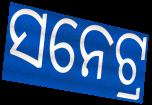
ସନେଟ୍ର